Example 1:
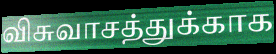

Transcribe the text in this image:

விசுவாசத்துக்காக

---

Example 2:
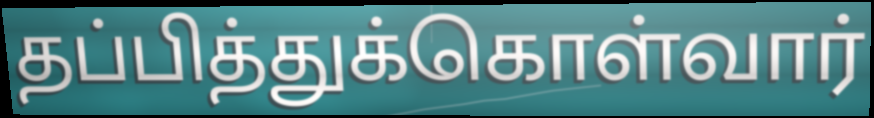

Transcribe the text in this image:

தப்பித்துக்கொள்வார்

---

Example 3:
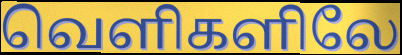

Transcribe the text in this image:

வெளிகளிலே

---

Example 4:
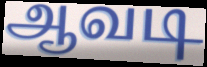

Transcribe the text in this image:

ஆவடி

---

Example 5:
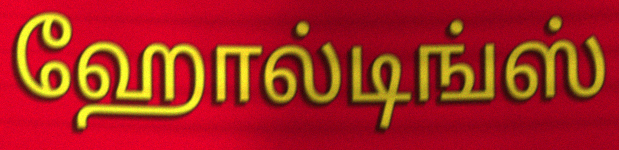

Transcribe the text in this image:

ஹோல்டிங்ஸ்